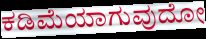
ಕಡಿಮೆಯಾಗುವುದೋ